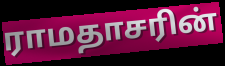
ராமதாசரின்